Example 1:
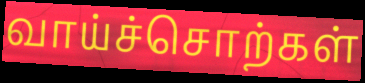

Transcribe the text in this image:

வாய்ச்சொற்கள்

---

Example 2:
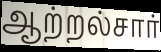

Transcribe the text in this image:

ஆற்றல்சார்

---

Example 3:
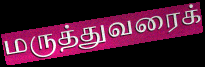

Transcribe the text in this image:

மருத்துவரைக்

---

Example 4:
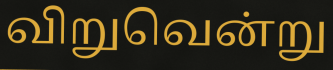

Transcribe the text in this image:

விறுவென்று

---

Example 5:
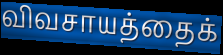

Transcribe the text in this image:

விவசாயத்தைக்